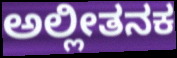
ಅಲ್ಲೀತನಕ